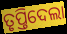
ତୃପ୍ତିଦେଲା